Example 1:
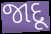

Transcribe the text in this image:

જાદૂ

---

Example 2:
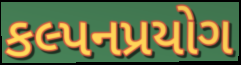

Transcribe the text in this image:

કલ્પનપ્રયોગ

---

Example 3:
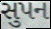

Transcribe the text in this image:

સુપન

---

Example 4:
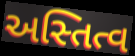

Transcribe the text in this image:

અસ્તિત્વ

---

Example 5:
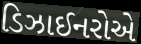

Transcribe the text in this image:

ડિઝાઈનરોએ